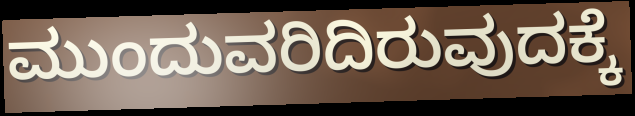
ಮುಂದುವರಿದಿರುವುದಕ್ಕೆ